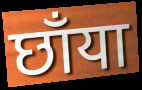
छाँया